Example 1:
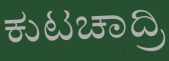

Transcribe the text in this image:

ಕುಟಚಾದ್ರಿ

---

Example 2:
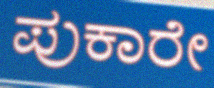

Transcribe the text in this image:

ಪುಕಾರೇ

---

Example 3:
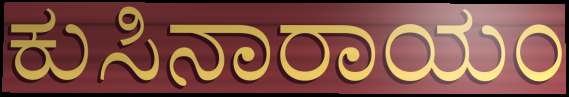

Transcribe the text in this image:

ಕುಸಿನಾರಾಯಂ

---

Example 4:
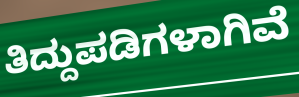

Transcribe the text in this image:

ತಿದ್ದುಪಡಿಗಳಾಗಿವೆ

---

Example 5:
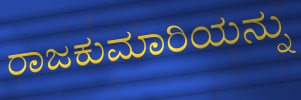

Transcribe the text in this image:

ರಾಜಕುಮಾರಿಯನ್ನು